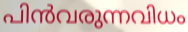
പിൻവരുന്നവിധം